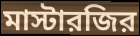
মাস্টারজির